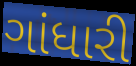
ગાંધારી